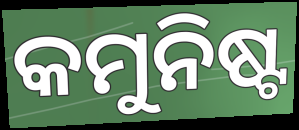
କମୁନିଷ୍ଟ